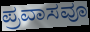
ಪ್ರವಾಸವೂ